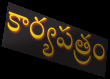
కార్యపత్రం